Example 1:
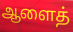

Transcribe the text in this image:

ஆளைத்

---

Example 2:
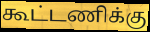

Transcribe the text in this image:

கூட்டணிக்கு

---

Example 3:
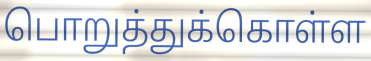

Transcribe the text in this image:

பொறுத்துக்கொள்ள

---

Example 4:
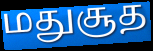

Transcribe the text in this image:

மதுசூத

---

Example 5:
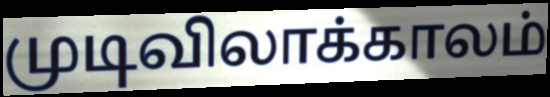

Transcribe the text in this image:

முடிவிலாக்காலம்